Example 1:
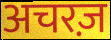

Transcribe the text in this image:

अचरज़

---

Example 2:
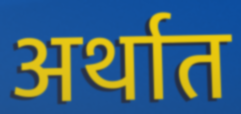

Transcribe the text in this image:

अर्थात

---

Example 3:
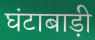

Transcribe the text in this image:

घंटाबाड़ी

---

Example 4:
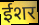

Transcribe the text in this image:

ईशर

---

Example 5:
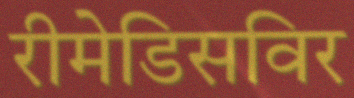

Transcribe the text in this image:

रीमेडिसविर